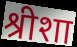
श्रीशा